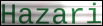
Hazari